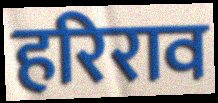
हरिराव